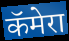
कॅमेरा